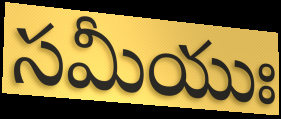
సమీయుః